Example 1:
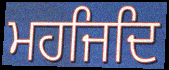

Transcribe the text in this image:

ਮਹਜਿਦਿ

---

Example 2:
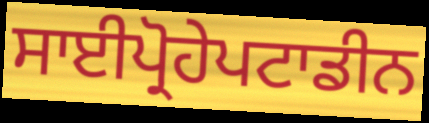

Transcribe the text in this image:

ਸਾਈਪ੍ਰੋਹੇਪਟਾਡੀਨ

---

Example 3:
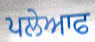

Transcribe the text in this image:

ਪਲੇਆਫ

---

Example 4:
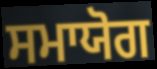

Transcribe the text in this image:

ਸਮਾਯੋਗ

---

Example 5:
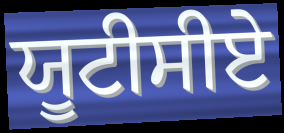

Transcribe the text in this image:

ਯੂਟੀਸੀਏ